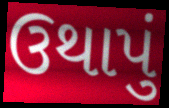
ઉથાપું